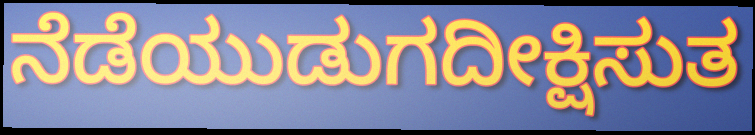
ನೆಡೆಯುಡುಗದೀಕ್ಷಿಸುತ